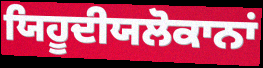
ਯਿਹੂਦੀਯਲੋਕਾਨਾਂ